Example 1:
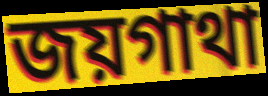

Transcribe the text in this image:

জয়গাথা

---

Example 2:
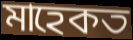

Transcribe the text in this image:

মাহেকত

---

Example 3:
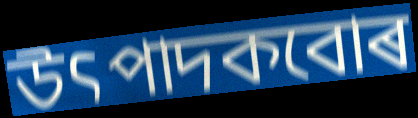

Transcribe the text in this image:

উৎপাদকবোৰ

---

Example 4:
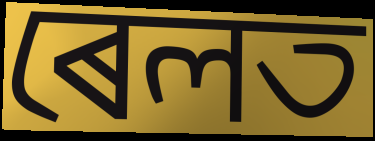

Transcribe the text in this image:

ৰেলত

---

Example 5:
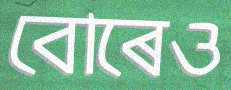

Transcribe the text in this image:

বোৰেও